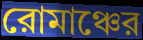
রোমাঞ্চের